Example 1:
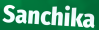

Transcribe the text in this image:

Sanchika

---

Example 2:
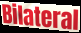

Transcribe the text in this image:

Bilateral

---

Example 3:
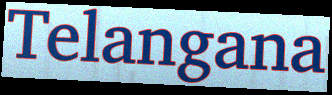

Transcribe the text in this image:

Telangana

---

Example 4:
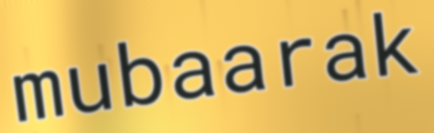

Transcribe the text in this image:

mubaarak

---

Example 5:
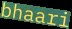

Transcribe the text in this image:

bhaari